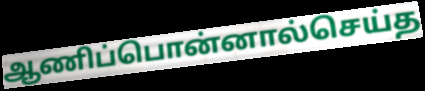
ஆணிப்பொன்னால்செய்த